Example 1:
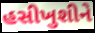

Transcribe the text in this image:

હસીખુશીને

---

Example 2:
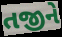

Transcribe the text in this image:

તજીને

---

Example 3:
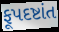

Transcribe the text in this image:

ફૂપદષ્ટાંત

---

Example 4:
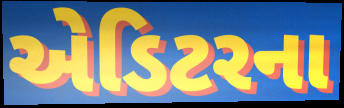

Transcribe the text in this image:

એડિટરના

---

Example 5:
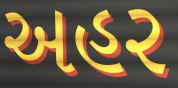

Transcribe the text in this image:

અહર